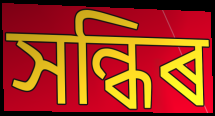
সন্ধিৰ